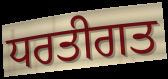
ਧਰਤੀਗਤ